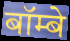
बॉम्बे